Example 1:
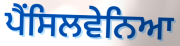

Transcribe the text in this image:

ਪੈਂਸਿਲਵੇਨਿਆ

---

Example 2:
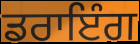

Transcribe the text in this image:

ਡਰਾਇੰਗ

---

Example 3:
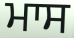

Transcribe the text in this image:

ਮਾਸ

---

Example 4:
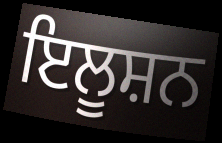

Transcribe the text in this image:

ਇਲੂਸ਼ਨ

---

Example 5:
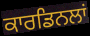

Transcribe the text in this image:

ਕਾਰਡਿਨਲਾਂ